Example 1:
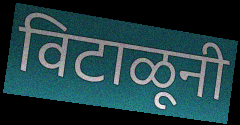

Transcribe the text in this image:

विटाळूनी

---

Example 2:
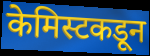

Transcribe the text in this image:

केमिस्टकडून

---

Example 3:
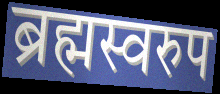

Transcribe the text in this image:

ब्रह्मस्वरुप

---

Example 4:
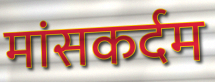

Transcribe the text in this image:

मांसकर्दम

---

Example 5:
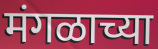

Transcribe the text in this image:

मंगळाच्या